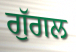
ਗੁੱਗਲ